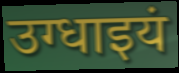
उग्धाइयं